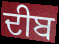
ਦੀਬ